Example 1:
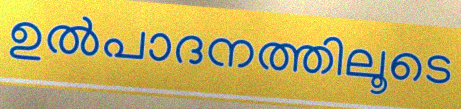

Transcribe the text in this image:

ഉൽപാദനത്തിലൂടെ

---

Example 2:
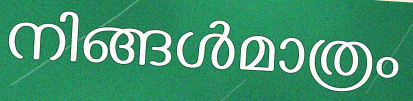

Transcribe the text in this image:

നിങ്ങൾമാത്രം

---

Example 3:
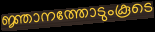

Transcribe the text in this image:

ജ്ഞാനത്തോടുംകൂടെ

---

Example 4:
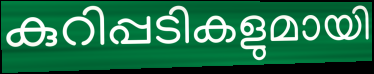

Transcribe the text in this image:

കുറിപ്പടികളുമായി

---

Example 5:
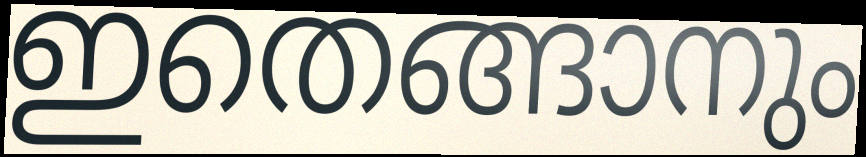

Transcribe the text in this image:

ഇതെങ്ങാനും